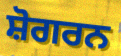
ਸ਼ੋਗਰਨ